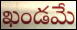
ఖండమే